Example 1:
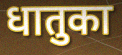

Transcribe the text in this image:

धातुका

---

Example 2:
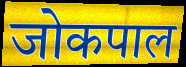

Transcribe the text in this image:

जोकपाल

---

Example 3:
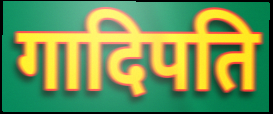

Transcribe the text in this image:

गादिपति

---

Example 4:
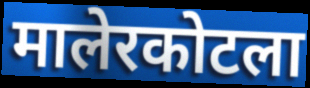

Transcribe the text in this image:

मालेरकोटला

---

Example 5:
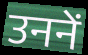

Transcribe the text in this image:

उननें